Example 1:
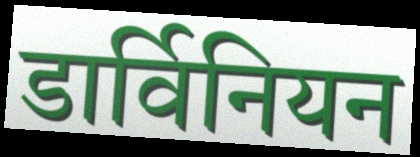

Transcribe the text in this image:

डार्विनियन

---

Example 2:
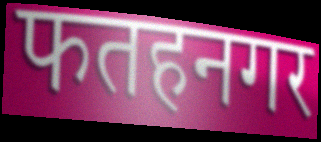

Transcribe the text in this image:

फतहनगर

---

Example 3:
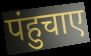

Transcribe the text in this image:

पंहुचाए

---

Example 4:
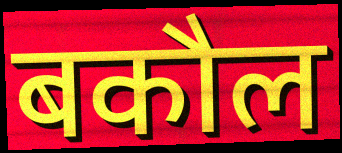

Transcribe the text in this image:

बकौल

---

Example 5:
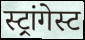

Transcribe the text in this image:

स्ट्रांगेस्ट